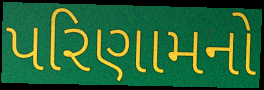
પરિણામનો